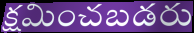
క్షమించబడరు